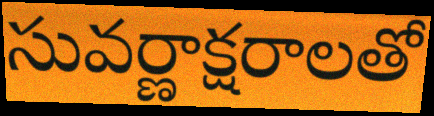
సువర్ణాక్షరాలతో